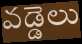
వడ్డెలు